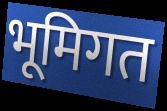
भूमिगत